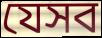
যেসব